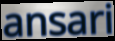
ansari